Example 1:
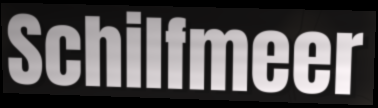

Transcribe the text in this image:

Schilfmeer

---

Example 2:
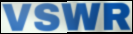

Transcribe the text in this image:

VSWR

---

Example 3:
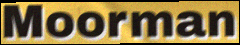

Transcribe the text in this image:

Moorman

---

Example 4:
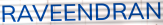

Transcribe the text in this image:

RAVEENDRAN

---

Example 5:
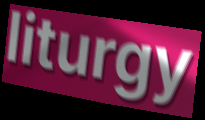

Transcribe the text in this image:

liturgy